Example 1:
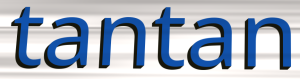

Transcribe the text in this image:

tantan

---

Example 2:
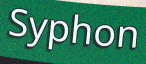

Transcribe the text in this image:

Syphon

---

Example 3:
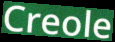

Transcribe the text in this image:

Creole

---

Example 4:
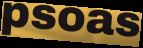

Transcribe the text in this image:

psoas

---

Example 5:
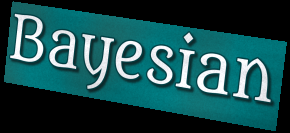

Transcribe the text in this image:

Bayesian